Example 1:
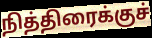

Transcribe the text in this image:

நித்திரைக்குச்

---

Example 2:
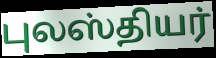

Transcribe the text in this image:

புலஸ்தியர்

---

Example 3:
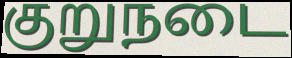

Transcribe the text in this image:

குறுநடை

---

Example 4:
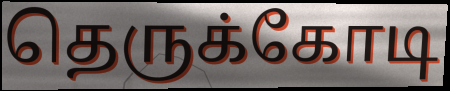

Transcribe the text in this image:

தெருக்கோடி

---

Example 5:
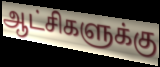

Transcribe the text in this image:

ஆட்சிகளுக்கு